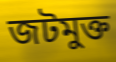
জটমুক্ত